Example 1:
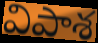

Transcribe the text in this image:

విపాశ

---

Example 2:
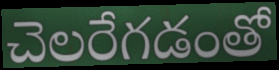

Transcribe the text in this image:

చెలరేగడంతో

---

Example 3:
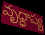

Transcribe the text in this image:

వృధ్ధాప్య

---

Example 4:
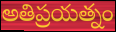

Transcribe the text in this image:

అతిప్రయత్నం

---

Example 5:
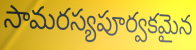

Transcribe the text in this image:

సామరస్యపూర్వకమైన